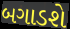
બગાડશે